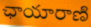
ఛాయారాణి